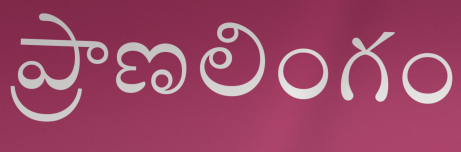
ప్రాణలింగం